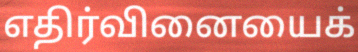
எதிர்வினையைக்